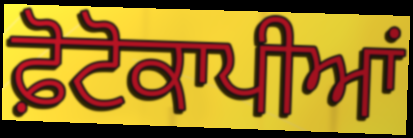
ਫ਼ੋਟੋਕਾਪੀਆਂ